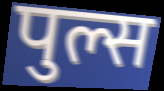
पुल्स